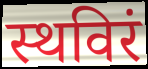
स्थविरं